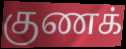
குணக்